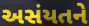
અસંયતને